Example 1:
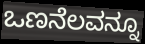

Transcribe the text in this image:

ಒಣನೆಲವನ್ನೂ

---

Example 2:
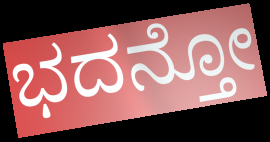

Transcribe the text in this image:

ಭದನ್ತೋ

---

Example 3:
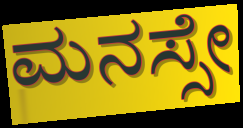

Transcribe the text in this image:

ಮನಸ್ಸೇ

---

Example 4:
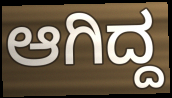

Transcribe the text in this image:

ಆಗಿದ್ದ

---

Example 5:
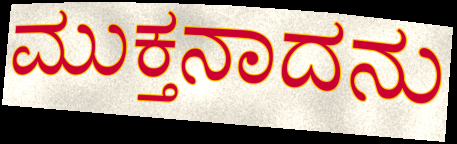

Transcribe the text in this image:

ಮುಕ್ತನಾದನು